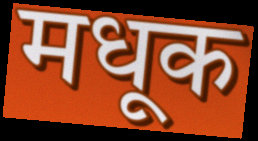
मधूक